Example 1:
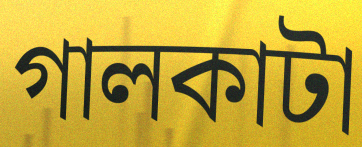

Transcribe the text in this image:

গালকাটা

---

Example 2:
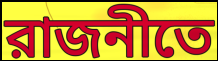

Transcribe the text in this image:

রাজনীতে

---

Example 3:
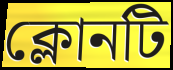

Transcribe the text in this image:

ক্লোনটি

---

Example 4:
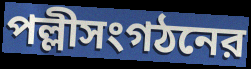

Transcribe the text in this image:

পল্লীসংগঠনের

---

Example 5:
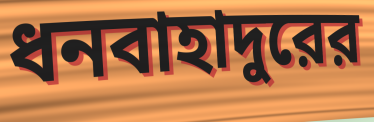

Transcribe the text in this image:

ধনবাহাদুরের